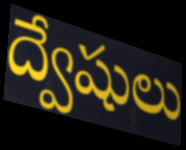
ద్వేషులు